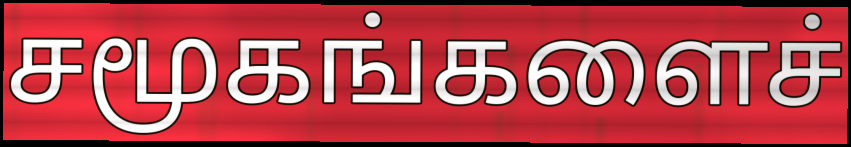
சமூகங்களைச்